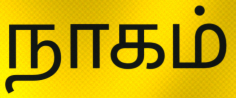
நாகம்